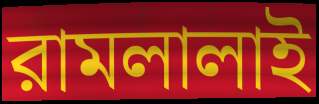
রামলালাই